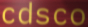
cdsco